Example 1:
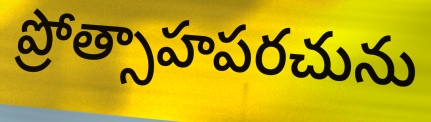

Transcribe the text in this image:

ప్రోత్సాహపరచును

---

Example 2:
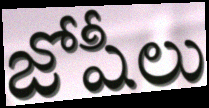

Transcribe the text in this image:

జోషీలు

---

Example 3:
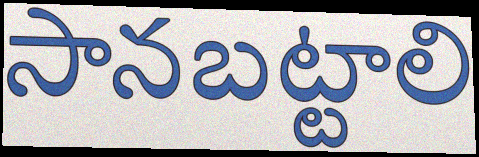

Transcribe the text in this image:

సానబట్టాలి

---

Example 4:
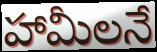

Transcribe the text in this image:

హామీలనే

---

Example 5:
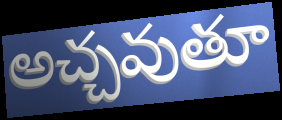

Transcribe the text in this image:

అచ్చవుతూ